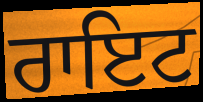
ਰਾਇਟ